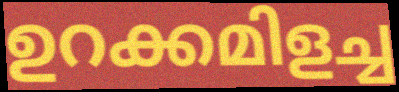
ഉറക്കമിളച്ച